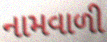
નામવાળી